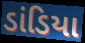
ડાંડિયા